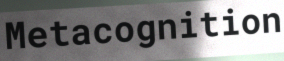
Metacognition